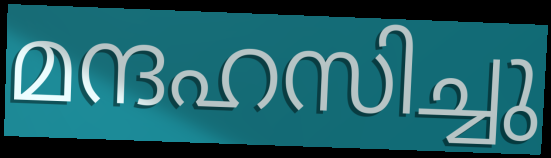
മന്ദഹസിച്ചു